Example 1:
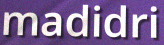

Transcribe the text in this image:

madidri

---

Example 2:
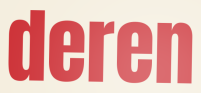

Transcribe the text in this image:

deren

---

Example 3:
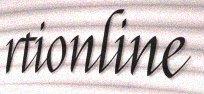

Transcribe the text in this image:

rtionline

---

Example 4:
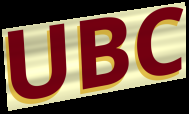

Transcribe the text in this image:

UBC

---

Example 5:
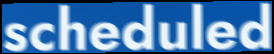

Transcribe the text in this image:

scheduled